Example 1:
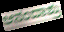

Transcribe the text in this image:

ಆನಂದಾಶ್ರು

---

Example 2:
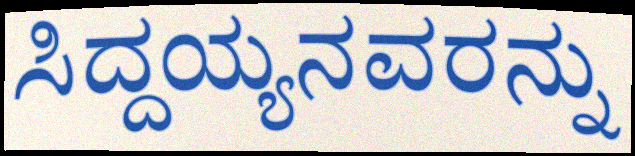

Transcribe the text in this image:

ಸಿದ್ದಯ್ಯನವರನ್ನು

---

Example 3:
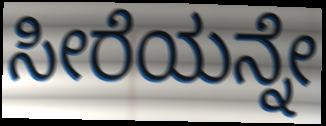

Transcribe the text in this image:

ಸೀರೆಯನ್ನೇ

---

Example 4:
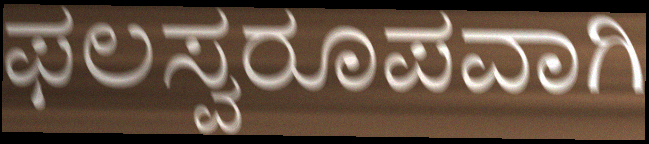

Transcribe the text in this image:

ಫಲಸ್ವರೂಪವಾಗಿ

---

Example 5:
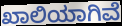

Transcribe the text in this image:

ಖಾಲಿಯಾಗಿವೆ